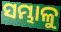
ସମ୍ଭାଳୁ